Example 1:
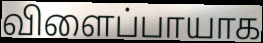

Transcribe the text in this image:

விளைப்பாயாக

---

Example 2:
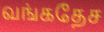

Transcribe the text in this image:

வங்கதேச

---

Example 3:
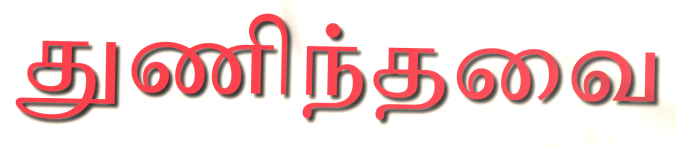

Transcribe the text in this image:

துணிந்தவை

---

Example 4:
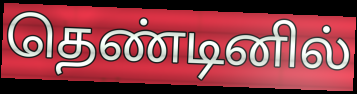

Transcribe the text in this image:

தெண்டினில்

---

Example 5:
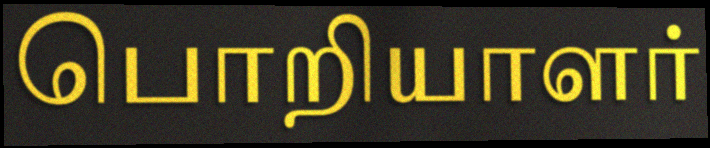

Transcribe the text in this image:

பொறியாளர்